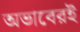
অভাবেরই